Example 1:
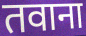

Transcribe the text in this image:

तवाना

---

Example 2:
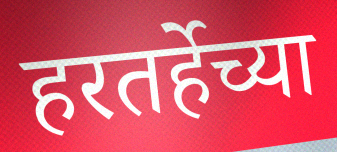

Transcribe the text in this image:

हरतर्हेच्या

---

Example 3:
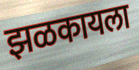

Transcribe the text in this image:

झळकायला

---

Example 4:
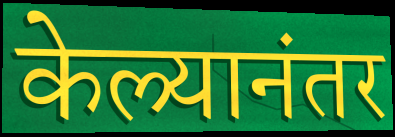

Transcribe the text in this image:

केल्यानंतर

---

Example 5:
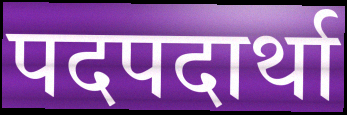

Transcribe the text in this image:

पदपदार्था